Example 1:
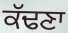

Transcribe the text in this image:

ਕੱਢਣਾ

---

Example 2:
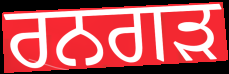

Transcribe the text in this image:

ਰਨਗੜ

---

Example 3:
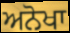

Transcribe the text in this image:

ਅਨੋਖਾ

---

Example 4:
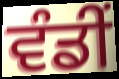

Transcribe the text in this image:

ਵੰਡੀਂ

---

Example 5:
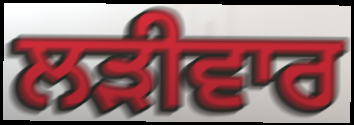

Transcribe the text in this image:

ਲੜੀਵਾਰ